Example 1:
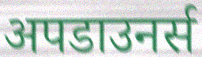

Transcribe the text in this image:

अपडाउनर्स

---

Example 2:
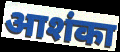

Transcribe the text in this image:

आशंका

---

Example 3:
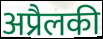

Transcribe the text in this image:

अप्रैलकी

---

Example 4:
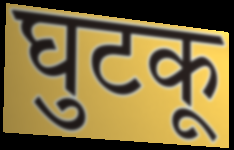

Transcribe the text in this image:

घुटकू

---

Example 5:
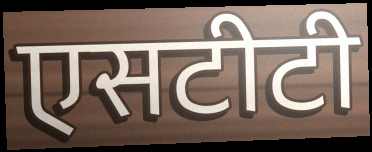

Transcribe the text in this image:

एसटीटी